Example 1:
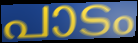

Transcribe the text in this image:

പാടം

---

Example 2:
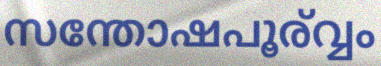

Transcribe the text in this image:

സന്തോഷപൂര്വ്വം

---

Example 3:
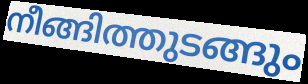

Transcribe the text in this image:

നീങ്ങിത്തുടങ്ങും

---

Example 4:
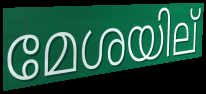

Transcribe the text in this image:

മേശയില്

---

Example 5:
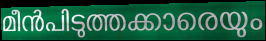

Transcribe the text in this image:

മീൻപിടുത്തക്കാരെയും